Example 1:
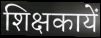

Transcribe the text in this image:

शिक्षकायें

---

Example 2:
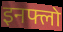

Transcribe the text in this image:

इनफ्लो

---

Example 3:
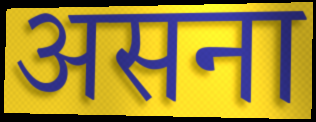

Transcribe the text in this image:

असना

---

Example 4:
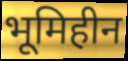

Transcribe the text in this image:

भूमिहीन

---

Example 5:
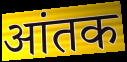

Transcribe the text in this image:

आंतक